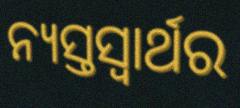
ନ୍ୟସ୍ତସ୍ୱାର୍ଥର